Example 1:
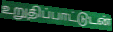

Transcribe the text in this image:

உறுதிப்பாட்டுடன்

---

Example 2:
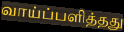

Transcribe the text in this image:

வாய்ப்பளித்தது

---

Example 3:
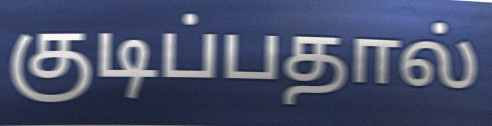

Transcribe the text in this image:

குடிப்பதால்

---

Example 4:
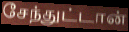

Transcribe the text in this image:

சேந்துட்டான்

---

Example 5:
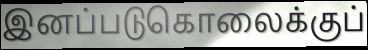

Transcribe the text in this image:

இனப்படுகொலைக்குப்